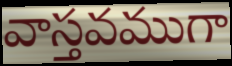
వాస్తవముగా